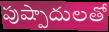
పుష్పాదులతో